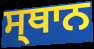
ਸ੍ਥਾਨ